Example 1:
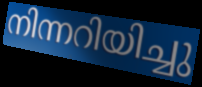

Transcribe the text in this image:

നിന്നറിയിച്ചു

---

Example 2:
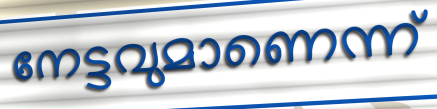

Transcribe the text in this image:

നേട്ടവുമാണെന്ന്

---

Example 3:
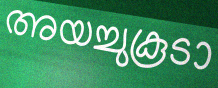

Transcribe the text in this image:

അയച്ചുകൂടാ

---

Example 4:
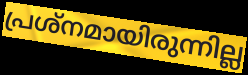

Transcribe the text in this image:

പ്രശ്നമായിരുന്നില്ല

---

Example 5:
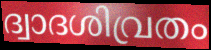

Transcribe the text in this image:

ദ്വാദശിവ്രതം